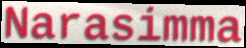
Narasimma